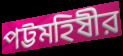
পট্টমহিষীর